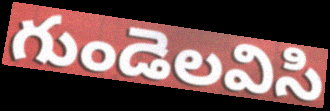
గుండెలవిసి